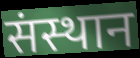
संस्थान